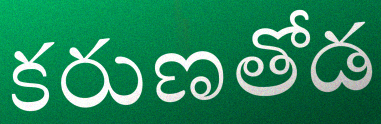
కరుణతోడ